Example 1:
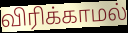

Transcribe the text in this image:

விரிக்காமல்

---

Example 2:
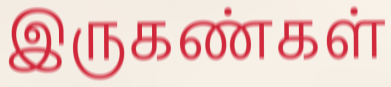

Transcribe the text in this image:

இருகண்கள்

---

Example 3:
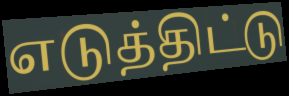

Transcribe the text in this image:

எடுத்திட்டு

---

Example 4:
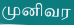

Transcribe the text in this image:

முனிவர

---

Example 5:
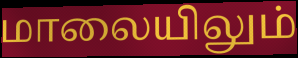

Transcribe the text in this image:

மாலையிலும்